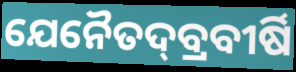
ଯେନୈତଦ୍‌ବ୍ରବୀର୍ଷି